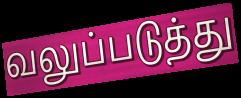
வலுப்படுத்து